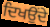
ਦਿਖਉਂਦੇ